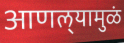
आणल्यामुळं